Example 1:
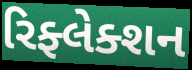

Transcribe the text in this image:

રિફ્લેક્શન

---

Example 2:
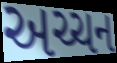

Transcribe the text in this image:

અચ્ચન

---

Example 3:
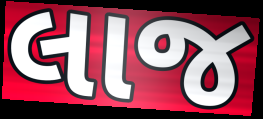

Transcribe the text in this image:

લાજ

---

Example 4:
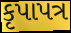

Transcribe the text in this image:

કૃપાપત્ર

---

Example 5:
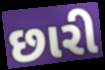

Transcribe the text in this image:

છારી